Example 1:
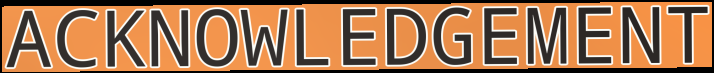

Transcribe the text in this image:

ACKNOWLEDGEMENT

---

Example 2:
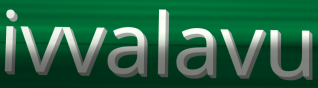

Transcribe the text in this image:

ivvalavu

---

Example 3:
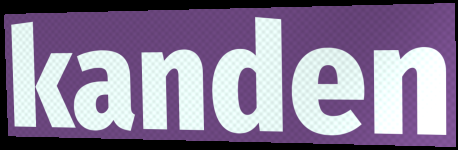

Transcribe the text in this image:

kanden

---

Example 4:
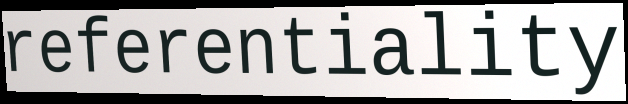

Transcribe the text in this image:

referentiality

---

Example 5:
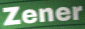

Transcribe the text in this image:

Zener